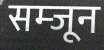
सम्जून